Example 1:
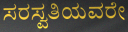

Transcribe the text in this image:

ಸರಸ್ವತಿಯವರೇ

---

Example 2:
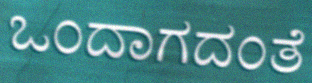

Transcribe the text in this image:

ಒಂದಾಗದಂತೆ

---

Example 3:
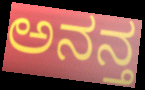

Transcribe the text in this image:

ಅನನ್ತ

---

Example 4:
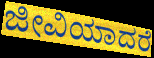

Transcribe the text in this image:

ಜೀವಿಯಾದರೆ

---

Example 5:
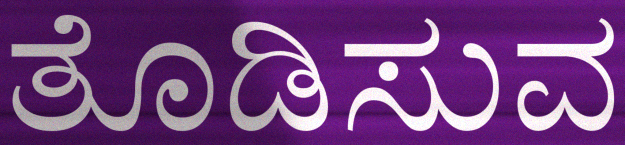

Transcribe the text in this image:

ತೊಡಿಸುವ